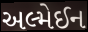
અલ્મેઈન